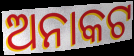
ଅନାକଟ